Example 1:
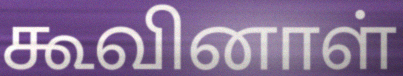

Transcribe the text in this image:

கூவினாள்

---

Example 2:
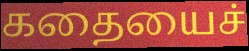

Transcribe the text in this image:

கதையைச்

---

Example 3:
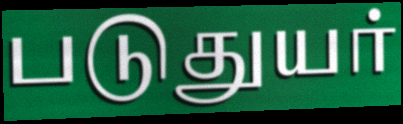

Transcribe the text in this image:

படுதுயர்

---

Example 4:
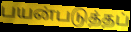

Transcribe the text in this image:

பயன்படுத்தப்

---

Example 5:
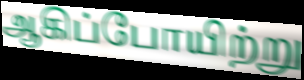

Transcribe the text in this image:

ஆகிப்போயிற்று